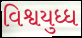
વિશ્વયુધ્ધ